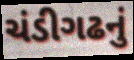
ચંડીગઢનું